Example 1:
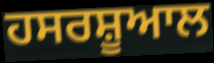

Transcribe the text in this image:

ਹਸਰਸ਼ੂਆਲ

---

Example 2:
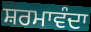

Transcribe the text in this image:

ਸ਼ਰਮਾਵੰਦਾ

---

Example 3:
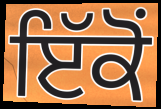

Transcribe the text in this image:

ਇੱਕੋਂ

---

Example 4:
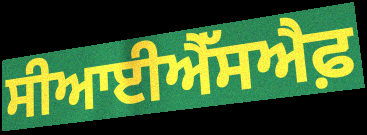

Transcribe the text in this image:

ਸੀਆਈਐੱਸਐਫ਼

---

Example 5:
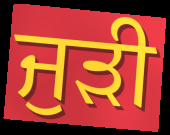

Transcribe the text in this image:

ਜੁੜੀ